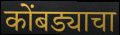
कोंबड्याचा